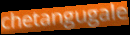
chetangugale